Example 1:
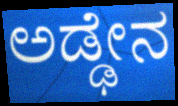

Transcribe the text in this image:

ಅಡ್ಢೇನ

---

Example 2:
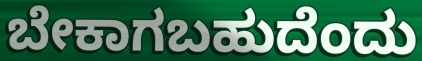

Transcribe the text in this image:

ಬೇಕಾಗಬಹುದೆಂದು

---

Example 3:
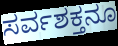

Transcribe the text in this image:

ಸರ್ವಶಕ್ತನೂ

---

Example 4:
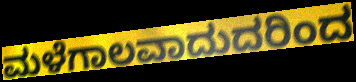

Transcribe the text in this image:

ಮಳೆಗಾಲವಾದುದರಿಂದ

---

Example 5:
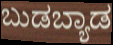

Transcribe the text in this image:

ಬುಡಬ್ಯಾಡ